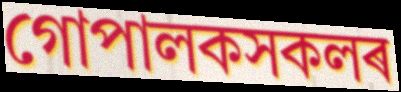
গোপালকসকলৰ